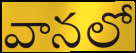
వానలో